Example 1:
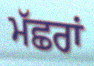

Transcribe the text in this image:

ਮੱਛਰਾਂ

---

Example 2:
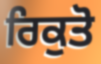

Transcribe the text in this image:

ਰਿਕੁਤੋ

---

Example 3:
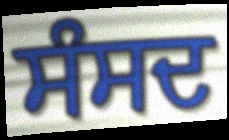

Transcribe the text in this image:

ਸੰਸਦ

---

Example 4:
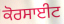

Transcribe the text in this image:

ਕੋਰਸਾਈਟ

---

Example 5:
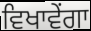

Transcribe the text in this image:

ਵਿਖਾਵੇਂਗਾ